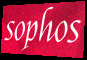
sophos